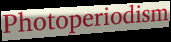
Photoperiodism